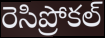
రెసిప్రోకల్